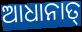
ଆଧାନାତ୍